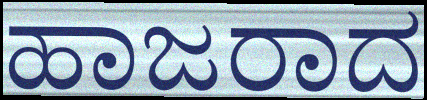
ಹಾಜರಾದ